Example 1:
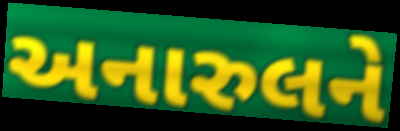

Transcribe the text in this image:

અનારુલને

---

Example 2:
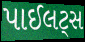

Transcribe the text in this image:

પાઈલટ્સ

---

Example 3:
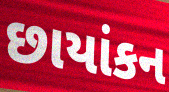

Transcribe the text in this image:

છાયાંકન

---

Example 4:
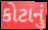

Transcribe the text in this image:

કોટાનું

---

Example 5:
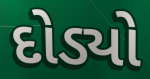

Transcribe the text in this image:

દોડ્યો